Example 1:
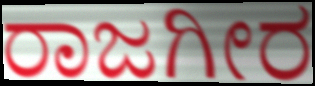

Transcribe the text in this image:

ರಾಜಗೀರ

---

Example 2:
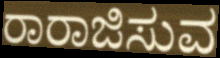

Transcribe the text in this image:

ರಾರಾಜಿಸುವ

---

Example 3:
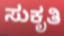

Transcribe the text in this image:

ಸುಕೃತಿ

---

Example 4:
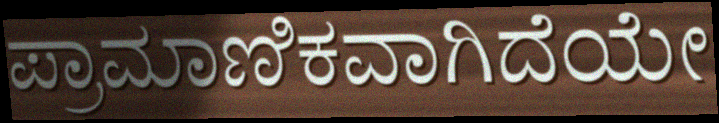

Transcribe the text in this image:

ಪ್ರಾಮಾಣಿಕವಾಗಿದೆಯೇ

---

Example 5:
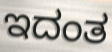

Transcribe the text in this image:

ಇದಂತ